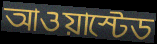
আওয়াস্টেড